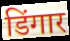
डिंगार